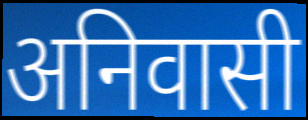
अनिवासी